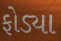
ફોડ્યા